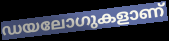
ഡയലോഗുകളാണ്